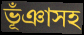
ভূঁঞাসহ